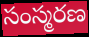
సంస్మరణ